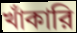
খাঁকারি